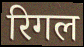
रिगल